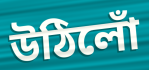
উঠিলোঁ